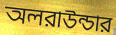
অলরাউন্ডার